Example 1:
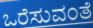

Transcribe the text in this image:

ಒರೆಸುವಂತೆ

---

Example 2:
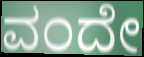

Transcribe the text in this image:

ವಂದೇ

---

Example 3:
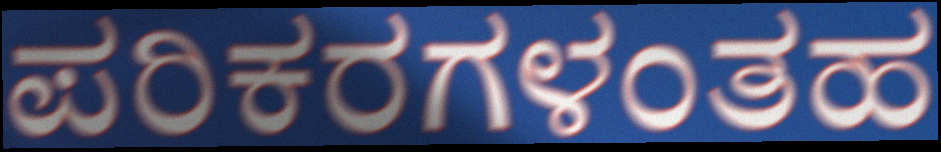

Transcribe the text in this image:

ಪರಿಕರಗಳಂತಹ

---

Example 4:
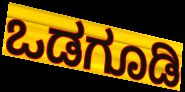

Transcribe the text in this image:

ಒಡಗೂಡಿ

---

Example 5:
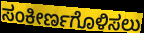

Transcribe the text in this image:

ಸಂಕೀರ್ಣಗೊಳಿಸಲು